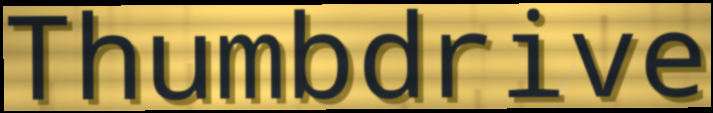
Thumbdrive